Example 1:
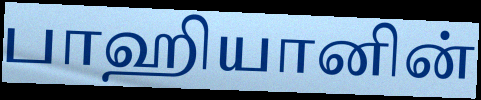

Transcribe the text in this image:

பாஹியானின்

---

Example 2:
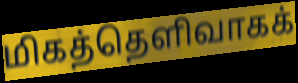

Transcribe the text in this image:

மிகத்தெளிவாகக்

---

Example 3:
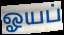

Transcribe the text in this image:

ஓயப்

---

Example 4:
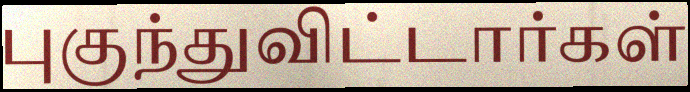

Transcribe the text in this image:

புகுந்துவிட்டார்கள்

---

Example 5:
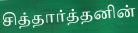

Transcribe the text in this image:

சித்தார்த்தனின்